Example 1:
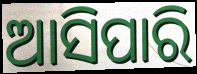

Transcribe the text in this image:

ଆସିପାରି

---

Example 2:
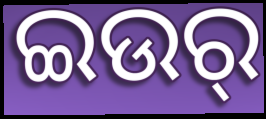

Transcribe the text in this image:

ଇଉର୍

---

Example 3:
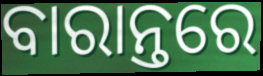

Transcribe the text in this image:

ବାରାନ୍ତରେ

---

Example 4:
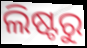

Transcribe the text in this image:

ଲିଷ୍ଟରୁ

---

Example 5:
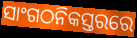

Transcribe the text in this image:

ସାଂଗଠନିକସ୍ତରରେ